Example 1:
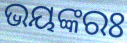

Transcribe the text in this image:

ଭୟଙ୍କରଃ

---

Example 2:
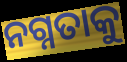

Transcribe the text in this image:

ନଗ୍ନତାକୁ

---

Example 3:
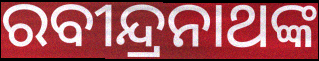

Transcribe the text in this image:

ରବୀନ୍ଦ୍ରନାଥଙ୍କ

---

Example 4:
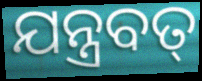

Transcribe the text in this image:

ଯନ୍ତ୍ରବତ୍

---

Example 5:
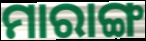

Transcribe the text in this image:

ମାରାଙ୍ଗ